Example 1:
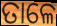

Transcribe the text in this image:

ତାଳେ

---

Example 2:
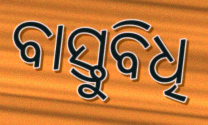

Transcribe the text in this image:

ବାସ୍ତୁବିଧି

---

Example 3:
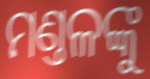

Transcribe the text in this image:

ମଣ୍ତଳଙ୍କୁ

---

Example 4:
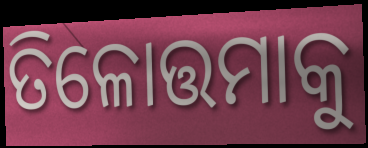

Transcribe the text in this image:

ତିଳୋତ୍ତମାକୁ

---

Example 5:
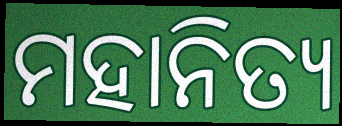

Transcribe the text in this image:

ମହାନିତ୍ୟ